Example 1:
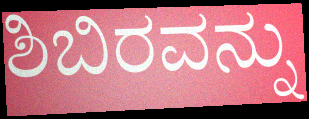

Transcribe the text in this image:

ಶಿಬಿರವನ್ನು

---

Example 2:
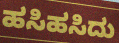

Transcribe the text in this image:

ಹಸಿಹಸಿದು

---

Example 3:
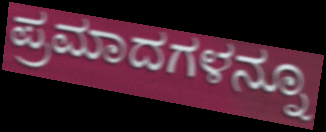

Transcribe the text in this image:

ಪ್ರಮಾದಗಳನ್ನೂ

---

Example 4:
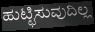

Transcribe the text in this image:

ಹುಟ್ಟಿಸುವುದಿಲ್ಲ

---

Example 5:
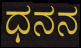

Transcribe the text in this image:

ಧನನ